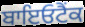
ਬਾਇਓਟੈਂਕ